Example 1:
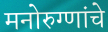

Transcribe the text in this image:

मनोरुग्णांचे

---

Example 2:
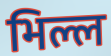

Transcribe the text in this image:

भिल्ल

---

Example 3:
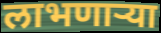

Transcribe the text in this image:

लाभणार्‍या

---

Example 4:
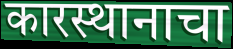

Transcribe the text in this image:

कारस्थानाचा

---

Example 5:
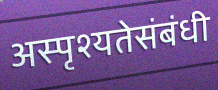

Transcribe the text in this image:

अस्पृश्यतेसंबंधी